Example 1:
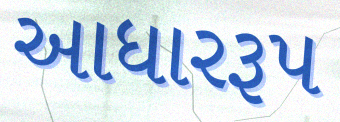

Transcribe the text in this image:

આધારરૂપ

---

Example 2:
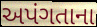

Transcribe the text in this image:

અપંગતાના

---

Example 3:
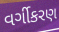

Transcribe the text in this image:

વર્ગીકરણ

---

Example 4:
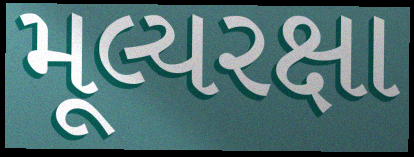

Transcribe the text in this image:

મૂલ્યરક્ષા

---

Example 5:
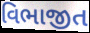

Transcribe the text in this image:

વિભાજીત